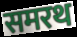
समरथ